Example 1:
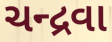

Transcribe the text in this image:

ચન્દ્રવા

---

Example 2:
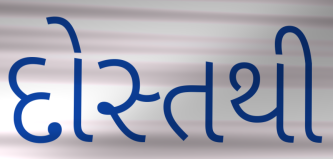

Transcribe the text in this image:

દોસ્તથી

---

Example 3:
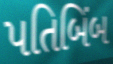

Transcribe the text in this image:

પતિબિંબ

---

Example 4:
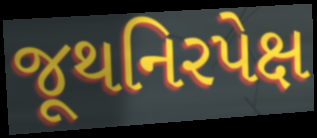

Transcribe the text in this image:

જૂથનિરપેક્ષ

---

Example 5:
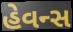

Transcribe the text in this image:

હેવન્સ